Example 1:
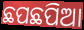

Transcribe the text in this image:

ଛପଛପିଆ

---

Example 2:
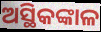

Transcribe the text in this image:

ଅସ୍ଥିକଙ୍କାଳ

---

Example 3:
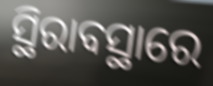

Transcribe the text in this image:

ସ୍ଥିରାବସ୍ଥାରେ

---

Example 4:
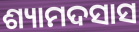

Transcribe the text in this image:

ଶ୍ୟାମଦସାସ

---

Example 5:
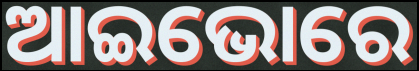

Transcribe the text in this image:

ଆଇଭୋରେ